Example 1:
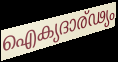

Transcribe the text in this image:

ഐക്യദാര്ഢ്യം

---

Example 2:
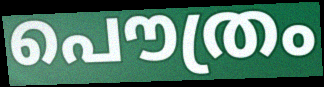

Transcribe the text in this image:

പൌത്രം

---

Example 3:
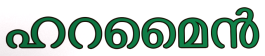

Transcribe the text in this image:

ഹറമൈൻ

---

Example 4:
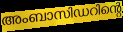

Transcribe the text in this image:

അംബാസിഡറിന്റെ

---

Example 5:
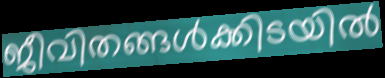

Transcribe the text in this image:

ജീവിതങ്ങൾക്കിടയിൽ